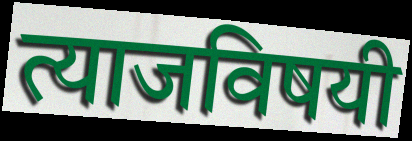
त्याजविषयी